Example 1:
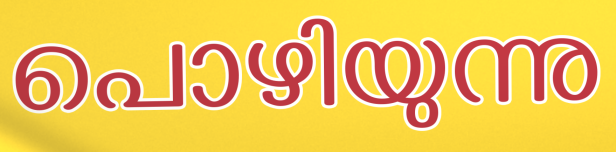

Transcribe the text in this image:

പൊഴിയുന്നു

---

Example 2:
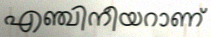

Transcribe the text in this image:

എഞ്ചിനീയറാണ്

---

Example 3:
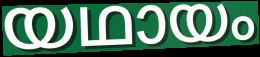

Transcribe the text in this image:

യഥായം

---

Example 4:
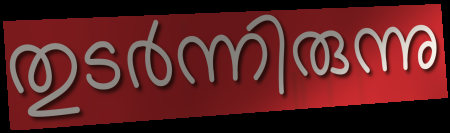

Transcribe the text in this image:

തുടർന്നിരുന്നു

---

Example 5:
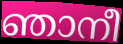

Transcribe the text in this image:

ഞാനീ